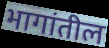
भागांतील